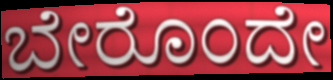
ಬೇರೊಂದೇ